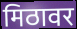
मिठावर